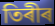
তিৰীৰ